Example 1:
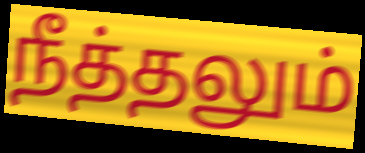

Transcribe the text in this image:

நீத்தலும்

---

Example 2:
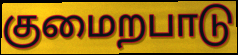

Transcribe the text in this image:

குமைறபாடு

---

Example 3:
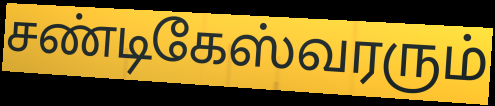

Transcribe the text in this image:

சண்டிகேஸ்வரரும்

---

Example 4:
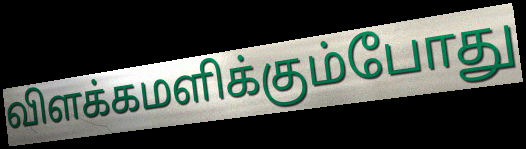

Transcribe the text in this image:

விளக்கமளிக்கும்போது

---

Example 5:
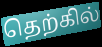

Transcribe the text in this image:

தெற்கில்